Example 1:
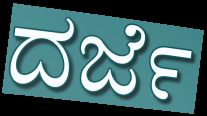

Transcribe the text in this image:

ದರ್ಜೆ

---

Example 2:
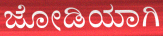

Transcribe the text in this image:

ಜೋಡಿಯಾಗಿ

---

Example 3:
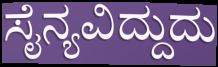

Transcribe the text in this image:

ಸೈನ್ಯವಿದ್ದುದು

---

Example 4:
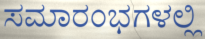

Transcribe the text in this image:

ಸಮಾರಂಭಗಳಲ್ಲಿ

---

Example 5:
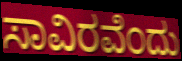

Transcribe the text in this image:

ಸಾವಿರವೆಂದು